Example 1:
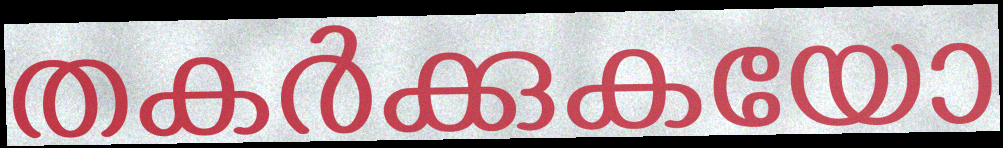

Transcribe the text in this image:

തകർക്കുകയോ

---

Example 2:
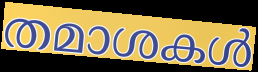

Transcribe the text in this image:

തമാശകൾ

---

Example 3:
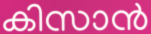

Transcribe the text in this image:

കിസാൻ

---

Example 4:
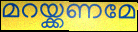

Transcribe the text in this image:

മറയ്ക്കണമേ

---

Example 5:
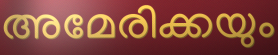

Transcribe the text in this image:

അമേരിക്കയും